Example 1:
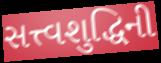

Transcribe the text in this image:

સત્ત્વશુદ્ધિની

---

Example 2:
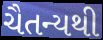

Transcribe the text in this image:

ચૈતન્યથી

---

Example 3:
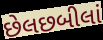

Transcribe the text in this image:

છેલછબીલાં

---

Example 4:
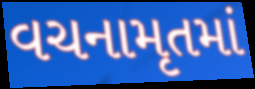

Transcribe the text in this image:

વચનામૃતમાં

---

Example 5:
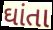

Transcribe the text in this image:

ઘાંતા